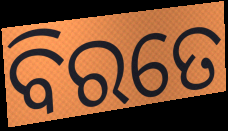
ବିରତେ